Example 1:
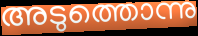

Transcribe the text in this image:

അടുത്തൊന്നു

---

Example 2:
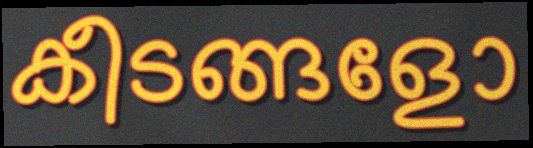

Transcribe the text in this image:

കീടങ്ങളോ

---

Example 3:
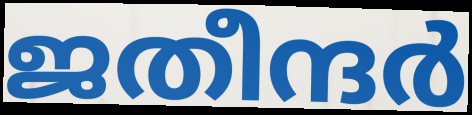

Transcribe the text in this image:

ജതീന്ദർ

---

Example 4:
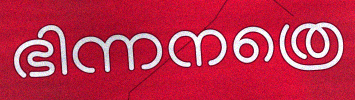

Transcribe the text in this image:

ഭിന്നനത്രെ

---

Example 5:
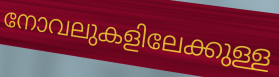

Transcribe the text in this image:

നോവലുകളിലേക്കുള്ള